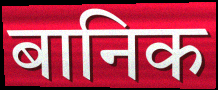
बानिक